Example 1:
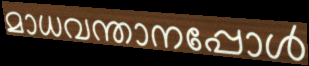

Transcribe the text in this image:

മാധവന്താനപ്പോൾ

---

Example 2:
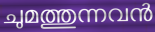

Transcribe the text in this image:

ചുമത്തുന്നവൻ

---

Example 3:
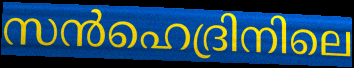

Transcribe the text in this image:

സൻഹെദ്രിനിലെ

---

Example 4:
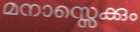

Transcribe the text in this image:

മനാസ്സെക്കും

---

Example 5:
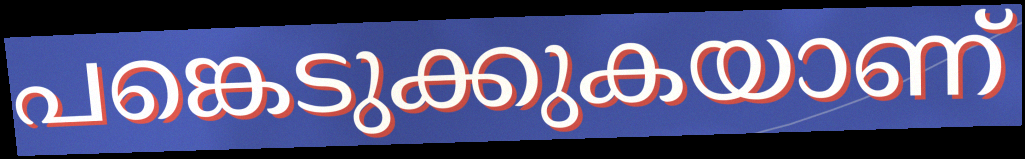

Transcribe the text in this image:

പങ്കെടുക്കുകയാണ്